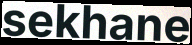
sekhane